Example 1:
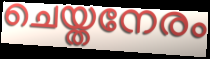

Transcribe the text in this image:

ചെയ്തനേരം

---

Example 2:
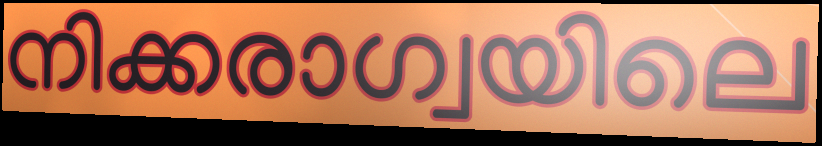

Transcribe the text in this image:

നിക്കരാഗ്വയിലെ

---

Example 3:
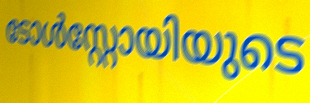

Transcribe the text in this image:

ടോൾസ്റ്റോയിയുടെ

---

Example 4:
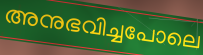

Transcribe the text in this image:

അനുഭവിച്ചപോലെ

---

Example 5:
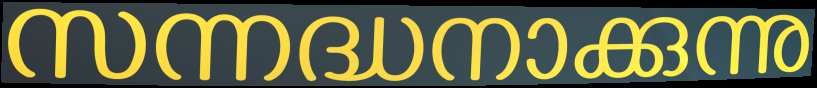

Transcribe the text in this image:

സന്നദ്ധനാക്കുന്നു